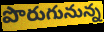
పొరుగునున్న